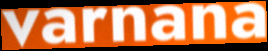
varnana